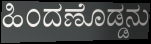
ಹಿಂದಣೊಡ್ಡನು